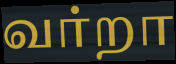
வர்றா